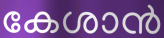
കേശാൻ